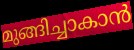
മുങ്ങിച്ചാകാൻ